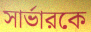
সার্ভারকে